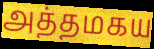
அத்தமகய